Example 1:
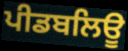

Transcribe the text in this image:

ਪੀਡਬਲਿਊ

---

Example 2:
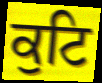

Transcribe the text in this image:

ਕੁਟਿ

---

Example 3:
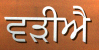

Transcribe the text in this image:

ਵੜੀਐ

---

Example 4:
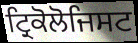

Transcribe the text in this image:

ਟ੍ਰਿਕੋਲੋਜਿਸਟ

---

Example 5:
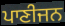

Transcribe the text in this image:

ਪਾਣੀਜਨ